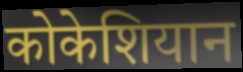
कोकेशियान